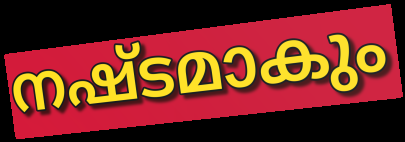
നഷ്ടമാകും